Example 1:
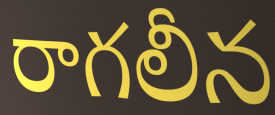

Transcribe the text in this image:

రాగలీన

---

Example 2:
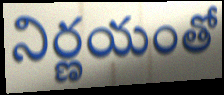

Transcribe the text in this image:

నిర్ణయంతో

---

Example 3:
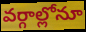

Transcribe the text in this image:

వర్గాల్లోనూ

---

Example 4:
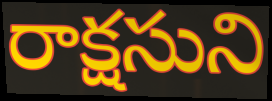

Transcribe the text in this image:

రాక్షసుని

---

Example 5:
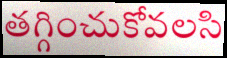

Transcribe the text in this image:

తగ్గించుకోవలసి